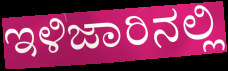
ಇಳಿಜಾರಿನಲ್ಲಿ